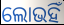
ଲୋଭହିଁ